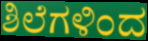
ಶಿಲೆಗಳಿಂದ